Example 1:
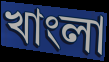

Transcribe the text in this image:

খাংলা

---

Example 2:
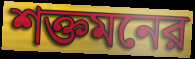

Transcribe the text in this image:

শক্তমনের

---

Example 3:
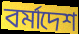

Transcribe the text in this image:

বর্মাদেশ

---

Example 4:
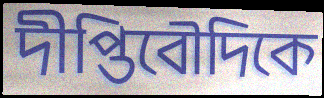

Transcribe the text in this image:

দীপ্তিবৌদিকে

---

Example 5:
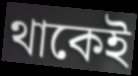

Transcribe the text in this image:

থাকেই